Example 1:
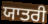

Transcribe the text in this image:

ਯਾਤਰੀ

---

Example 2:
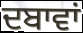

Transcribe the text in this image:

ਦਬਾਵਾਂ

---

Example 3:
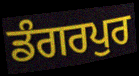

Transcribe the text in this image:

ਡੰਗਰਪੁਰ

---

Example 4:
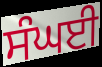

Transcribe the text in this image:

ਸੰਘਈ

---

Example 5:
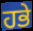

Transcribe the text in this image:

ਹਭੇ